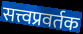
सत्त्वप्रवर्तक